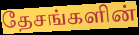
தேசங்களின்